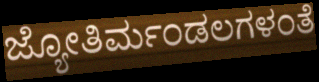
ಜ್ಯೋತಿರ್ಮಂಡಲಗಳಂತೆ